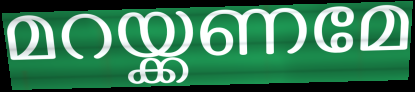
മറയ്ക്കണമേ